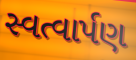
સ્વત્વાર્પણ